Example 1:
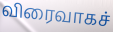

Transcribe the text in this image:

விரைவாகச்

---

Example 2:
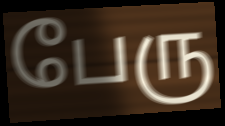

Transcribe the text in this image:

பேரு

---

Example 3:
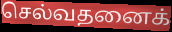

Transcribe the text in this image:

செல்வதனைக்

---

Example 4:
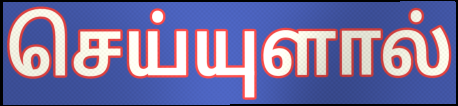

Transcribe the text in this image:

செய்யுளால்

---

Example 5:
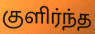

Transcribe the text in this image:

குளிர்ந்த